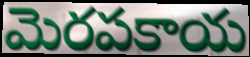
మెరపకాయ